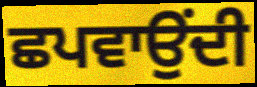
ਛਪਵਾਉਂਦੀ